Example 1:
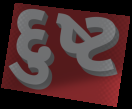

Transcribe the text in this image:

દુષ્ટ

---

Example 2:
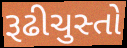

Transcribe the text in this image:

રૂઢીચુસ્તો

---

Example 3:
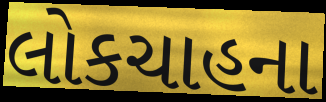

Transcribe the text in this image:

લોકચાહના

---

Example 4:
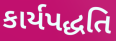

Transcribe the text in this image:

કાર્યપદ્ધતિ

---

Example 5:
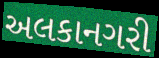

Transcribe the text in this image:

અલકાનગરી